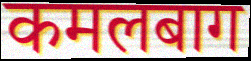
कमलबाग